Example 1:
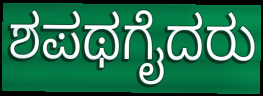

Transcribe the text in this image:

ಶಪಥಗೈದರು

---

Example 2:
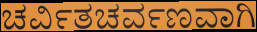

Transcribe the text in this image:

ಚರ್ವಿತಚರ್ವಣವಾಗಿ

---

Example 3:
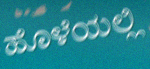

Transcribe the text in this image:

ಹೊಳೆಯಲ್ಲಿ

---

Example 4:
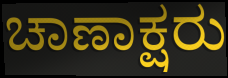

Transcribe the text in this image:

ಚಾಣಾಕ್ಷರು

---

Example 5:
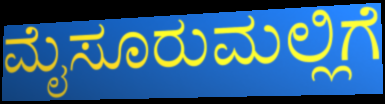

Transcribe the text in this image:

ಮೈಸೂರುಮಲ್ಲಿಗೆ